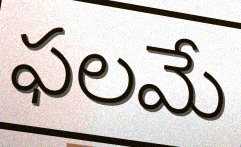
ఫలమే